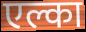
एल्का